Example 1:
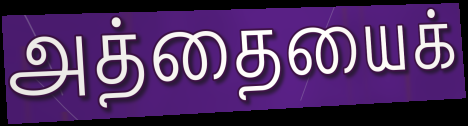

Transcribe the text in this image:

அத்தையைக்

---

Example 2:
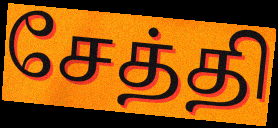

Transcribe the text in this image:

சேத்தி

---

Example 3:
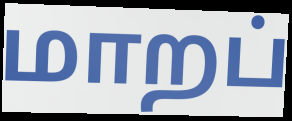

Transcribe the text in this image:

மாறப்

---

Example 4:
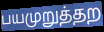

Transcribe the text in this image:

பயமுறுத்தற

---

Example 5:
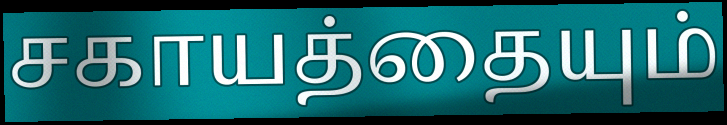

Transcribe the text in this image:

சகாயத்தையும்